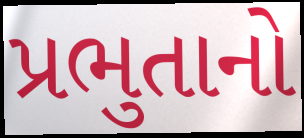
પ્રભુતાનો